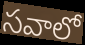
సవాలో